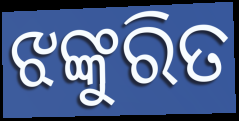
ଝଙ୍କୁରିତ